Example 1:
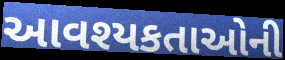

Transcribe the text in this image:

આવશ્યકતાઓની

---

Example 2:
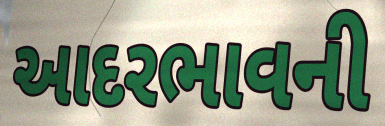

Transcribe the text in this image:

આદરભાવની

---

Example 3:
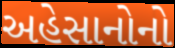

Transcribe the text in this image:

અહેસાનોનો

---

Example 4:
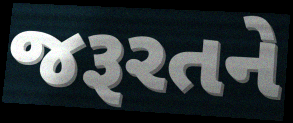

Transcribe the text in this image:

જરૂરતને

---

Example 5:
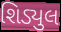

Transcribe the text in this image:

શિડ્યુલ